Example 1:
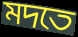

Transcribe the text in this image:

মদতে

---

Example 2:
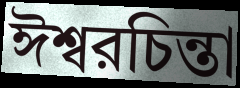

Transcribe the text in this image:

ঈশ্বরচিন্তা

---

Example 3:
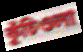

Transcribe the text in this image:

কুঁচিওলা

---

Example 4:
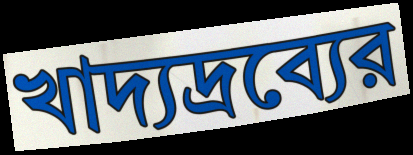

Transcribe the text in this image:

খাদ্যদ্রব্যের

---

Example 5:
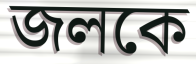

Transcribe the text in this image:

জলকে